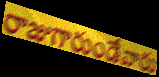
రాజుగారుండేవారు